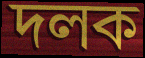
দলক